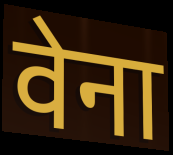
वेना